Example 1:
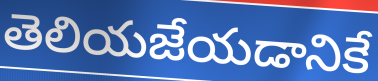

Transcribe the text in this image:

తెలియజేయడానికే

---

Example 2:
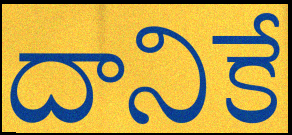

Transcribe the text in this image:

దానికే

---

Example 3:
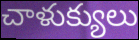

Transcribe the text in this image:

చాళుక్యులు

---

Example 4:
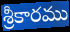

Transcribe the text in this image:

శ్రీకారము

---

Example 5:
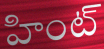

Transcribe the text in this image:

హింట్